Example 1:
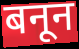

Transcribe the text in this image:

बनून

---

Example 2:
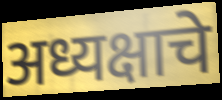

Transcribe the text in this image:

अध्यक्षाचे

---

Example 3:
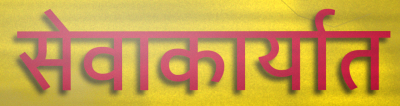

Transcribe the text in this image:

सेवाकार्यात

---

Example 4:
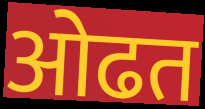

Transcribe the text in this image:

ओढत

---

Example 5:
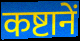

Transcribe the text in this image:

कष्टानें